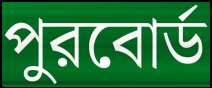
পুরবোর্ড